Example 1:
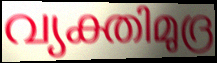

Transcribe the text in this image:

വ്യക്തിമുദ്ര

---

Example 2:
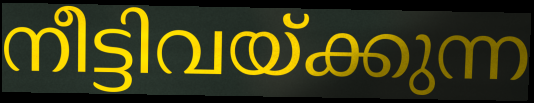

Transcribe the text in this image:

നീട്ടിവയ്ക്കുന്ന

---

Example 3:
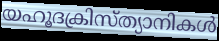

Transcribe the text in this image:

യഹൂദക്രിസ്ത്യാനികൾ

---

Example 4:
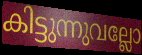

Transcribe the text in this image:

കിട്ടുന്നുവല്ലോ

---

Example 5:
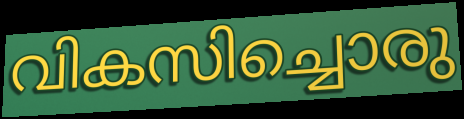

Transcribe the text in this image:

വികസിച്ചൊരു